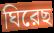
ঘিরেছ